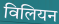
विलियन